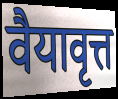
वैयावृत्त